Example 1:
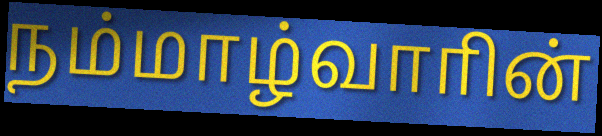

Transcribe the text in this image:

நம்மாழ்வாரின்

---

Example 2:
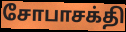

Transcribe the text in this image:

சோபாசக்தி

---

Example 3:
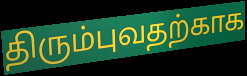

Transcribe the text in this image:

திரும்புவதற்காக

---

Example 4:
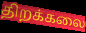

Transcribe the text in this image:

திறக்கலை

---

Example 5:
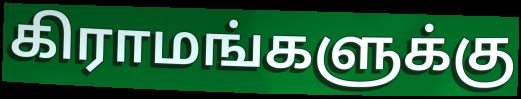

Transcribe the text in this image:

கிராமங்களுக்கு